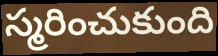
స్మరించుకుంది